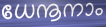
ധേനൂനാം